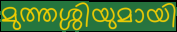
മുത്തശ്ശിയുമായി